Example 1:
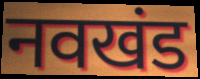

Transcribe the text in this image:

नवखंड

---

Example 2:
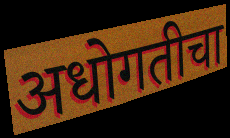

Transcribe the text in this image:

अधोगतीचा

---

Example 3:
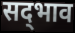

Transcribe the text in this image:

सद्‍भाव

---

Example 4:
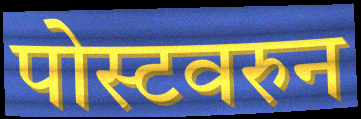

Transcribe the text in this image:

पोस्टवरुन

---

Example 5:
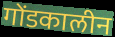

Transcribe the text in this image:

गोंडकालीन